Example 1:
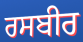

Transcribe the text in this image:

ਰਸਬੀਰ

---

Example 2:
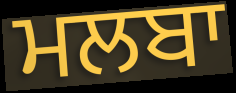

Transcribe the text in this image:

ਮਲਬਾ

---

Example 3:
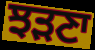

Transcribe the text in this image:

ਝੜਣਾ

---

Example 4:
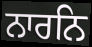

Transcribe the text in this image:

ਨਾਰਨਿ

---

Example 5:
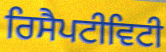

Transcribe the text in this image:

ਰਿਸੈਪਟੀਵਿਟੀ